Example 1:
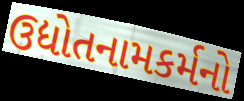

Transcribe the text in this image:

ઉદ્યોતનામકર્મનો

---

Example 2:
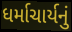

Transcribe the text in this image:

ધર્માચાર્યનું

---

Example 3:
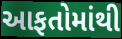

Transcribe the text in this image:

આફતોમાંથી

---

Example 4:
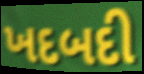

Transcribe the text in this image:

ખદબદી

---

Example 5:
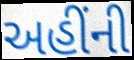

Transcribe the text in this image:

અહીંની